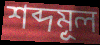
শব্দমূল